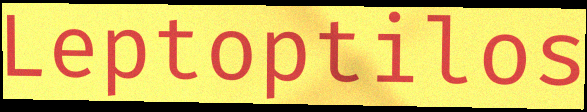
Leptoptilos